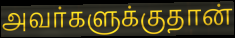
அவர்களுக்குதான்